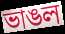
ভাঙল